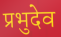
प्रभुदेव